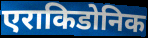
एराकिडोनिक